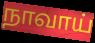
நாவாய்